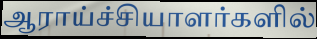
ஆராய்ச்சியாளர்களில்